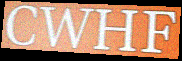
CWHF